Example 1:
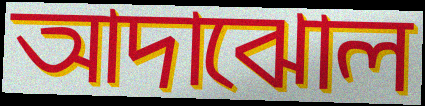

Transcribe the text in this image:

আদাঝোল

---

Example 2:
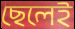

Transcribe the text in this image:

ছেলেই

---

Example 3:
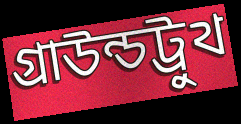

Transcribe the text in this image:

গ্রাউন্ডট্রুথ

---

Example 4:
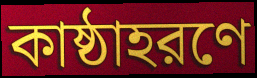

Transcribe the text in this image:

কাষ্ঠাহরণে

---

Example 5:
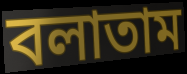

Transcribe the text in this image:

বলাতাম